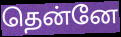
தென்னே